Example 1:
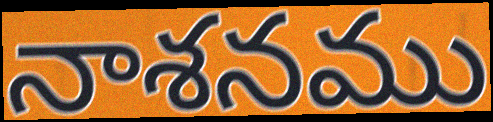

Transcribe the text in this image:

నాశనము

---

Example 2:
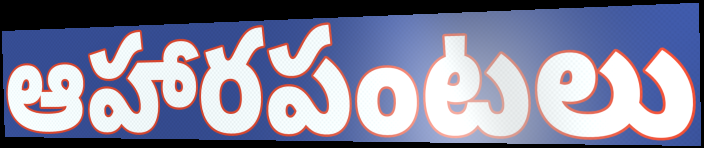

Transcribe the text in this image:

ఆహారపంటలు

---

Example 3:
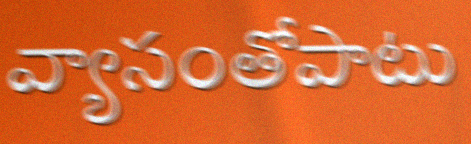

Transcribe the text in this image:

వ్యాసంతోపాటు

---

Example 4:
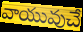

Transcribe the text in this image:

వాయువుచే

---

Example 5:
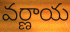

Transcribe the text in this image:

వర్ణాయ